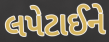
લપેટાઈને